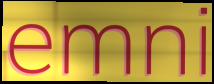
emni